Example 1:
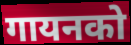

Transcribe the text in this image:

गायनको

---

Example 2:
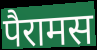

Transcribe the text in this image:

पैरामस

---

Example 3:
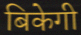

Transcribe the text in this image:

बिकेगी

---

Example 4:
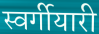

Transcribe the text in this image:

स्वर्गीयारी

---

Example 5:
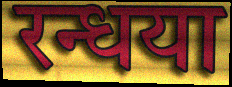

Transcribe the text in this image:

रन्धया